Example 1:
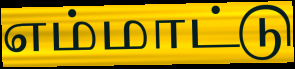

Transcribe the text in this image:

எம்மாட்டு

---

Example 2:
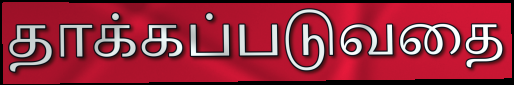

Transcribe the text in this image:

தாக்கப்படுவதை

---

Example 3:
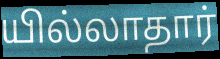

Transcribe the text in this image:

யில்லாதார்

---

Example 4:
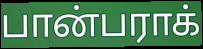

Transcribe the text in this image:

பான்பராக்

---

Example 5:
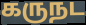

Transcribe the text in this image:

கருநட